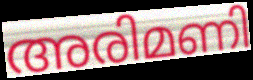
അരിമണി